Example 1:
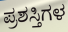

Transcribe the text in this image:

ಪ್ರಶಸ್ತಿಗಳ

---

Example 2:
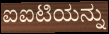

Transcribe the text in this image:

ಐಐಟಿಯನ್ನು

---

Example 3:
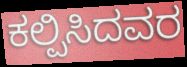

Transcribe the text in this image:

ಕಲ್ಪಿಸಿದವರ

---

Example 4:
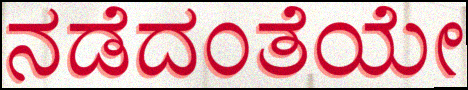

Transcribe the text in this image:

ನಡೆದಂತೆಯೇ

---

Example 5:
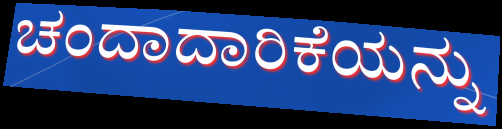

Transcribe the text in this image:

ಚಂದಾದಾರಿಕೆಯನ್ನು